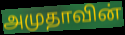
அமுதாவின்